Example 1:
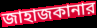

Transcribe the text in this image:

জাহাজকানার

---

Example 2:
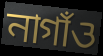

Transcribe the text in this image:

নাগাঁও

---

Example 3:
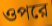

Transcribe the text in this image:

ওপরে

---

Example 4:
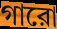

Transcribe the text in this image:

গারো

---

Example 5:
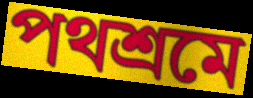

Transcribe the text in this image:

পথশ্রমে